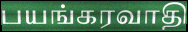
பயங்கரவாதி